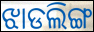
ଝାଡଲିଙ୍ଗ